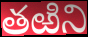
తఱిని